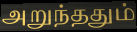
அறுந்ததும்